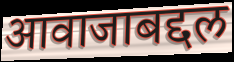
आवाजाबद्दल